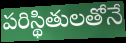
పరిస్థితులతోనే